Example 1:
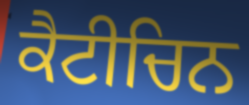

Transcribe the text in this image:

ਕੈਟੀਚਿਨ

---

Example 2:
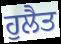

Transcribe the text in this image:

ਹੁਲੈਤ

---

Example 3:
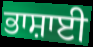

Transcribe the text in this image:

ਭਾਸ਼ਾਈ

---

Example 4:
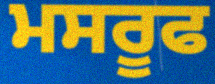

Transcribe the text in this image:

ਮਸਰੂਫ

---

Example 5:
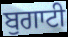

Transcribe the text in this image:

ਬੁਗਾਟੀ